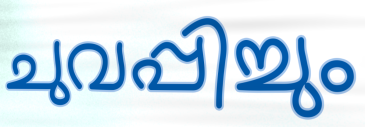
ചുവപ്പിച്ചും